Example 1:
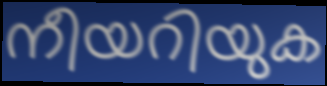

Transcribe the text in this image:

നീയറിയുക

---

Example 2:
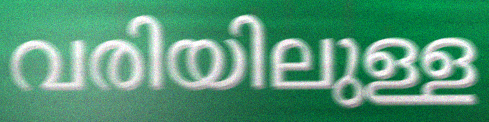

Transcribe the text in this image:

വരിയിലുള്ള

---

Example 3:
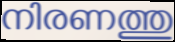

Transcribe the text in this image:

നിരണത്തു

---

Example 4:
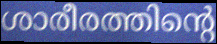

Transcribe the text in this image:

ശാരീരത്തിന്റെ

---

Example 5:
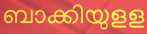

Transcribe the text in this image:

ബാക്കിയുളള